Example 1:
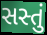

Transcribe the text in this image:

સસ્તું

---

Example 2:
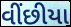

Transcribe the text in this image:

વીંછીયા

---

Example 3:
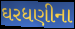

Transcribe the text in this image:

ઘરધણીના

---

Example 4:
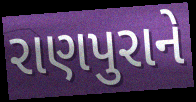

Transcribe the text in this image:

રાણપુરાને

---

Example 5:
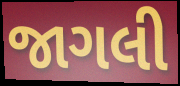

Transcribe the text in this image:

જાગલી